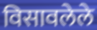
विसावलेले